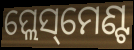
ପ୍ଲେସ୍‌ମେଣ୍ଟ